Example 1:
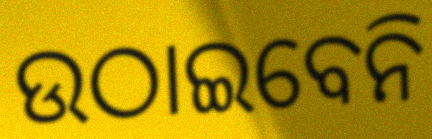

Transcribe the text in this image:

ଉଠାଇବେନି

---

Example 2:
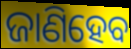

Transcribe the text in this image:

ଜାଣିହେବ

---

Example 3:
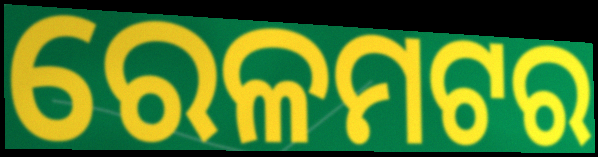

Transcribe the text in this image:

ରେଳମଟର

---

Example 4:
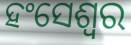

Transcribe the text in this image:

ହଂସେଶ୍ୱର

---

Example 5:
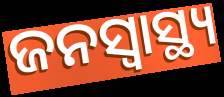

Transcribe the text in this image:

ଜନସ୍ୱାସ୍ଥ୍ୟ